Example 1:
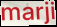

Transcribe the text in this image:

marji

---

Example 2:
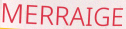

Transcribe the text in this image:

MERRAIGE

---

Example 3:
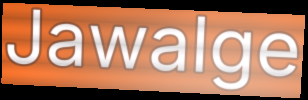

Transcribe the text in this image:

Jawalge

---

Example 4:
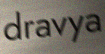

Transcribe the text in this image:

dravya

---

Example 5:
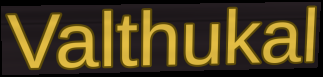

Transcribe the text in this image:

Valthukal